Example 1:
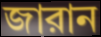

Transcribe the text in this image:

জারান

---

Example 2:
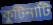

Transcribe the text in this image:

কুটিনাটি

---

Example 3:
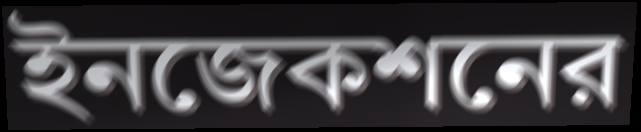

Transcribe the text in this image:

ইনজেকশনের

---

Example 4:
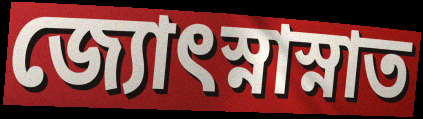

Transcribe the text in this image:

জ্যোৎস্নাস্নাত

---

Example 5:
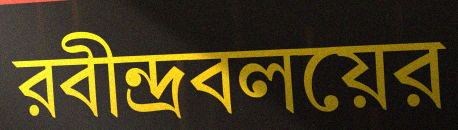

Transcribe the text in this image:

রবীন্দ্রবলয়ের